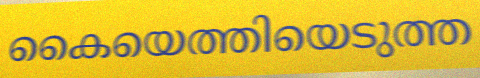
കൈയെത്തിയെടുത്ത